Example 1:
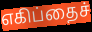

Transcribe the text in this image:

எகிப்தைச்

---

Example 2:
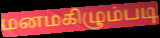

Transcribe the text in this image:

மனமகிழும்படி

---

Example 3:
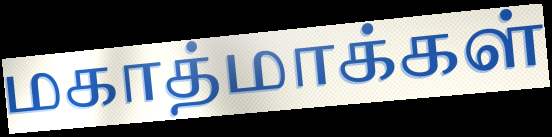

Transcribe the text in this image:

மகாத்மாக்கள்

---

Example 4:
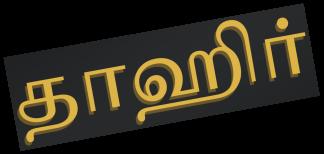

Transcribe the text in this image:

தாஹிர்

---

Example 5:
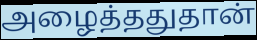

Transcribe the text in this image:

அழைத்ததுதான்